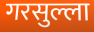
गरसुल्ला